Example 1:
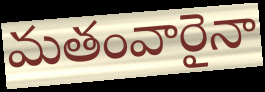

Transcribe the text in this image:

మతంవారైనా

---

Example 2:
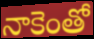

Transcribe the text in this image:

నాకెంతో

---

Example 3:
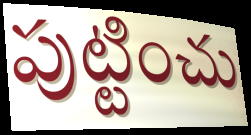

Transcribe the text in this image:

పుట్టించు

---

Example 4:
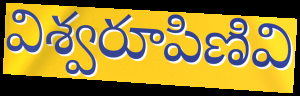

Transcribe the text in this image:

విశ్వరూపిణివి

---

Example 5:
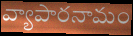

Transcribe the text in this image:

వ్యాపారనామం